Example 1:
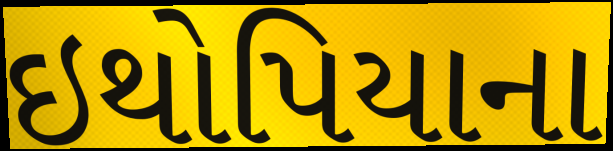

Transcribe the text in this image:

ઇથોપિયાના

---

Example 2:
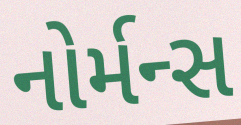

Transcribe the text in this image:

નોર્મન્સ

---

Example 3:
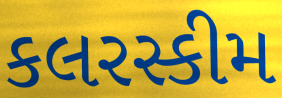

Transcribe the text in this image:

કલરસ્કીમ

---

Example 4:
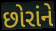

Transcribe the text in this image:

છોરાંને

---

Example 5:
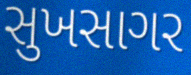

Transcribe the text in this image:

સુખસાગર